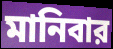
মানিবার